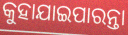
କୁହାଯାଇପାରନ୍ତା